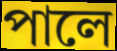
পালে